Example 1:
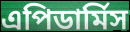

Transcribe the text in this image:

এপিডার্মিস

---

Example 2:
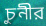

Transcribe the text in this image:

চুনীর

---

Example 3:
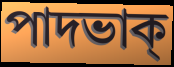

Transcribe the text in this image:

পাদভাক্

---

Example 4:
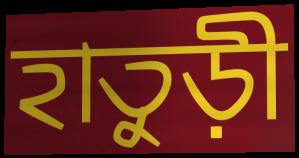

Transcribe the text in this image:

হাতুড়ী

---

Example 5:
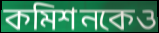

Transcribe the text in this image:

কমিশনকেও